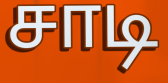
சாடி